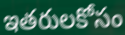
ఇతరులకోసం